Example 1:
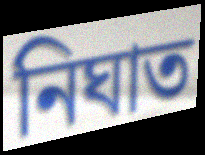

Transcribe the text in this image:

নিঘাত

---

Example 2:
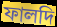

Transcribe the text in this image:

ফালদি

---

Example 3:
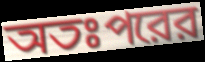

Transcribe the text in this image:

অতঃপরের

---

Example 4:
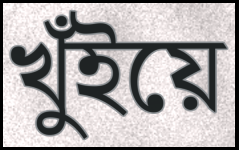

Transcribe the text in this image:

খুঁইয়ে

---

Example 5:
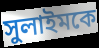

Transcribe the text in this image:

সুলাইমকে